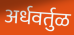
अर्धवर्तुळ